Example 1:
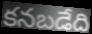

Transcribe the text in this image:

కనబడేది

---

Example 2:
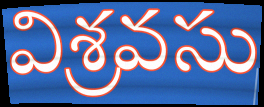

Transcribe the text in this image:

విశ్రవసు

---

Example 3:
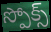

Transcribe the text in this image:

స్పోక్స్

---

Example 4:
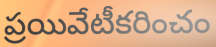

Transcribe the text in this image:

ప్రయివేటీకరించం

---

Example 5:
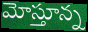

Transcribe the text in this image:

మోస్తూన్న